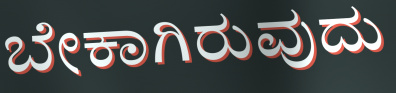
ಬೇಕಾಗಿರುವುದು